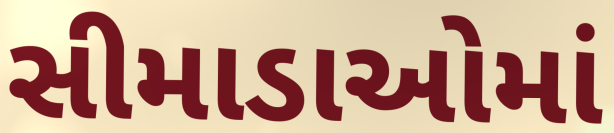
સીમાડાઓમાં